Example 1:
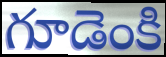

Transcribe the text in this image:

గూడెంకి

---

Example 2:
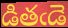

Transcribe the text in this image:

డితఁడె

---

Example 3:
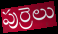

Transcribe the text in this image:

పుర్రెలు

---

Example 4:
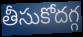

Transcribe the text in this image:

తీసుకోదగ్గ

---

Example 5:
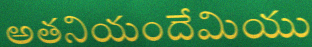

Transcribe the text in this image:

అతనియందేమియు